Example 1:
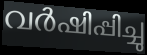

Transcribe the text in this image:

വർഷിപ്പിച്ചു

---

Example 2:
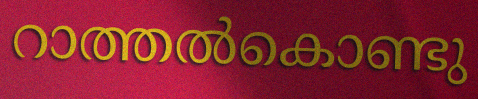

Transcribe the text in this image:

റാത്തൽകൊണ്ടു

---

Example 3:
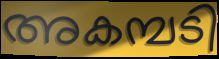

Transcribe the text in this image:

അകമ്പടി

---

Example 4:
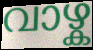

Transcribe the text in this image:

വാഴ്ക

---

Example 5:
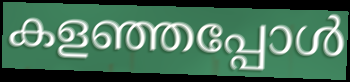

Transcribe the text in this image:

കളഞ്ഞപ്പോൾ